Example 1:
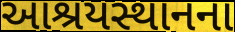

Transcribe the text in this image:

આશ્રયસ્થાનના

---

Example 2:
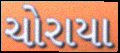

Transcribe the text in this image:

ચોરાયા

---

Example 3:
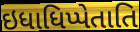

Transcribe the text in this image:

ઇધાધિપ્પેતાતિ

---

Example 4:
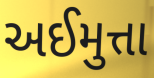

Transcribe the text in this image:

અઈમુત્તા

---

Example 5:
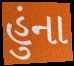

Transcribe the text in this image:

હુંના